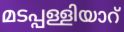
മടപ്പള്ളിയാറ്